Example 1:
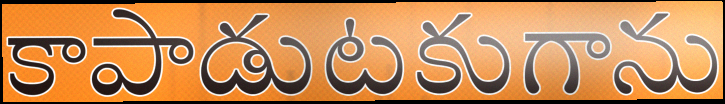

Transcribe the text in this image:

కాపాడుటకుగాను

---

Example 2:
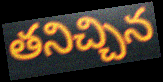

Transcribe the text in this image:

తనిచ్చిన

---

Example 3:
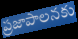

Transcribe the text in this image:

ప్రజాపాలనకు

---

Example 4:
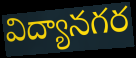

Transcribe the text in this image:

విద్యానగర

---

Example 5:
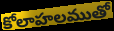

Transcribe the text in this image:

కోలాహలముతో